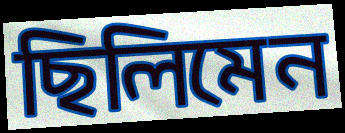
ছিলিমেন